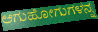
ಆಗುಹೋಗುಗಳನ್ನ